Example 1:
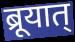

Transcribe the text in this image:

ब्रूयात्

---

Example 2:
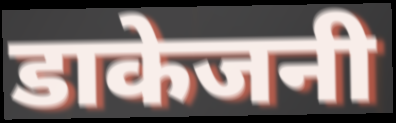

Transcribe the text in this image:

डाकेजनी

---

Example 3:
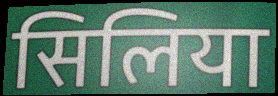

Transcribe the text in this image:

सिलिया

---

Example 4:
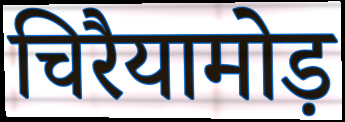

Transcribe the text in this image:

चिरैयामोड़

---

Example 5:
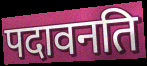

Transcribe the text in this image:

पदावनति